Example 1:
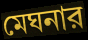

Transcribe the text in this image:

মেঘনার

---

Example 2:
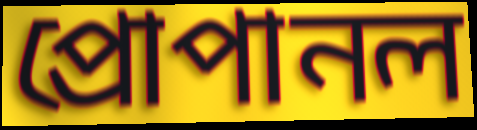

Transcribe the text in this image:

প্রোপানল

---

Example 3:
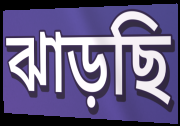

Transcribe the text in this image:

ঝাড়ছি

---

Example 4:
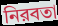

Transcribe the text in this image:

নিরবতা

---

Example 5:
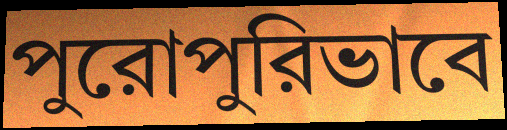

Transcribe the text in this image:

পুরোপুরিভাবে